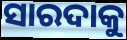
ସାରଦାକୁ